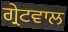
ਗ੍ਰੇਟਵਾਲ